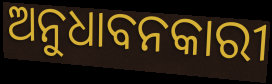
ଅନୁଧାବନକାରୀ